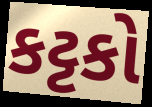
કટ્ટકો